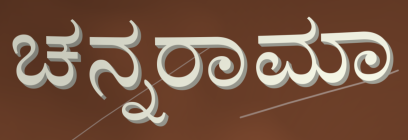
ಚನ್ನರಾಮಾ